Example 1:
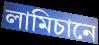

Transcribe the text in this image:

লামিচানে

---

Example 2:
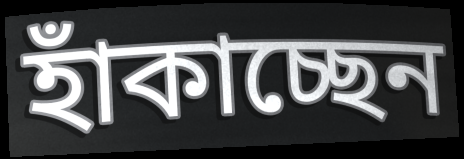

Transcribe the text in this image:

হাঁকাচ্ছেন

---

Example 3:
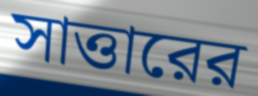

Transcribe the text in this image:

সাত্তারের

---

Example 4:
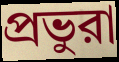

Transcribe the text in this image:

প্রভুরা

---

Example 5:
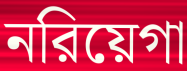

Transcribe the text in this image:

নরিয়েগা